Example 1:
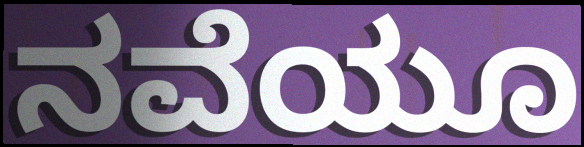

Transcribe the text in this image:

ನವೆಯೂ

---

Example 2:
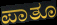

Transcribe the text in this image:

ಪಾತೂ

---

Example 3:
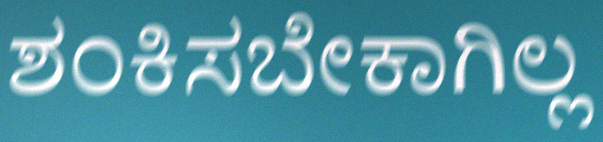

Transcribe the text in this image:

ಶಂಕಿಸಬೇಕಾಗಿಲ್ಲ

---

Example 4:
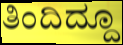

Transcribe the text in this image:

ತಿಂದಿದ್ದೂ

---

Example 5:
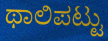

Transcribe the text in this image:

ಥಾಲಿಪಟ್ಟು